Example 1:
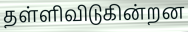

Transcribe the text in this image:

தள்ளிவிடுகின்றன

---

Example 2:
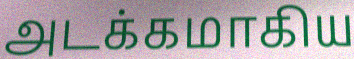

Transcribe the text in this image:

அடக்கமாகிய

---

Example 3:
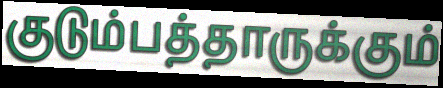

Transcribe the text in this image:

குடும்பத்தாருக்கும்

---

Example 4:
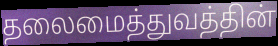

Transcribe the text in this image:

தலைமைத்துவத்தின்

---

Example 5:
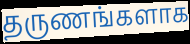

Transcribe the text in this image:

தருணங்களாக